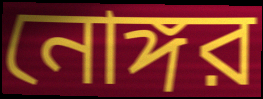
নোঙ্গর